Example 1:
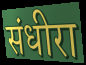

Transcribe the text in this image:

संधीरा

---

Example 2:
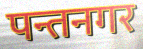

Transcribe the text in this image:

पन्तनगर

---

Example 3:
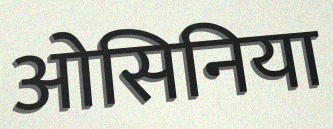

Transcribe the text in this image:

ओसिनिया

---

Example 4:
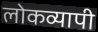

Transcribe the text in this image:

लोकव्यापी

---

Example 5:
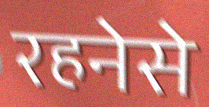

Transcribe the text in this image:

रहनेसे